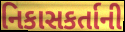
નિકાસકર્તાની